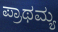
ಪ್ರಾಥಮ್ಯ